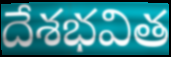
దేశభవిత